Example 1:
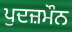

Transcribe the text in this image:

ਪੁਦਜ਼ਮੌਨ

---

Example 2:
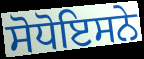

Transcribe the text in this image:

ਸੋਧੋਇਸਨੇ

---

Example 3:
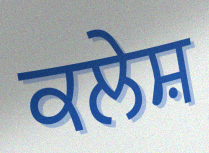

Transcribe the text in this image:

ਕਲੇਸ਼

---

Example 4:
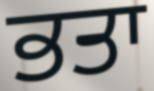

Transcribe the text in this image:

ਭਤਾ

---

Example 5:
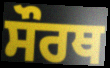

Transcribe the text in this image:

ਸੌਰਥ